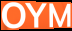
OYM